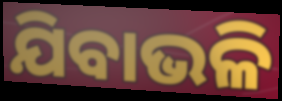
ଯିବାଭଳି